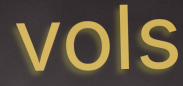
vols